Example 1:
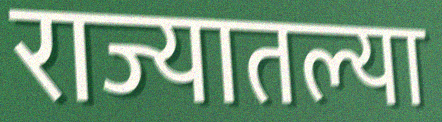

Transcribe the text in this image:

राज्यातल्या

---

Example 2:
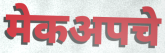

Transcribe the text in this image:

मेकअपचे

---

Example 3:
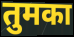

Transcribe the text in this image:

तुमका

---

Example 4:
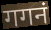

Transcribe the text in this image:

गगनं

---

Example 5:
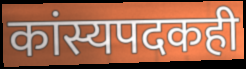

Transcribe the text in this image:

कांस्यपदकही